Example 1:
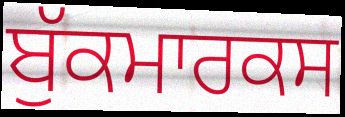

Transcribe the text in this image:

ਬੁੱਕਮਾਰਕਸ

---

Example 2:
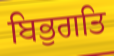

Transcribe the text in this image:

ਬਿਭੁਗਤਿ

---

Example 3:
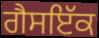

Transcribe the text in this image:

ਗੈਸਇੱਕ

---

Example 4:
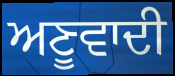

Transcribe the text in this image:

ਅਣੂਵਾਦੀ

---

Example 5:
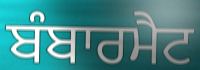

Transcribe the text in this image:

ਬੰਬਾਰਮੈਟ